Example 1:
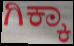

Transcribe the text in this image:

ಗಿಕ್ಕಾ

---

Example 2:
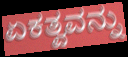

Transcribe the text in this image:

ಏಕತ್ವವನ್ನು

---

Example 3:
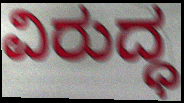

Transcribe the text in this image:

ವಿರುದ್ಧ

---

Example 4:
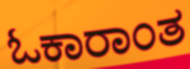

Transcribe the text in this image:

ಓಕಾರಾಂತ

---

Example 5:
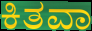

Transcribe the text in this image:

ಕಿತವಾ